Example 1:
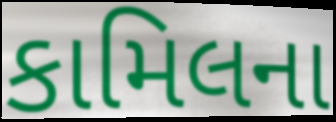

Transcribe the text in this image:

કામિલના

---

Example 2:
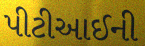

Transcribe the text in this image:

પીટીઆઈની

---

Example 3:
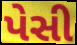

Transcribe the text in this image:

પેસી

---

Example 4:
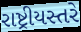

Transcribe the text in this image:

રાષ્ટ્રીયસ્તરે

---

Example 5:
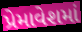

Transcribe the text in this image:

પ્રેમાવેશમાં